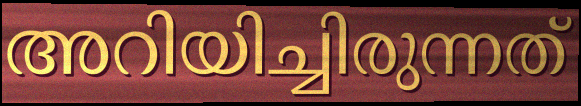
അറിയിച്ചിരുന്നത്